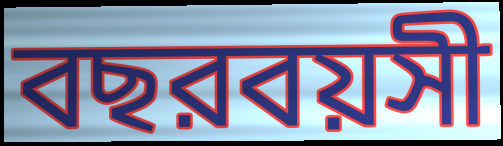
বছরবয়সী